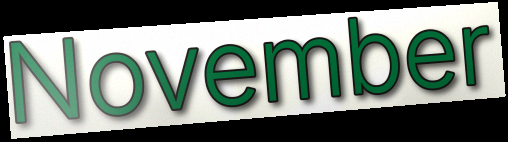
November